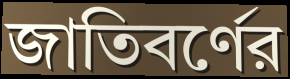
জাতিবর্ণের